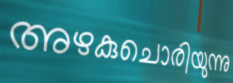
അഴകുചൊരിയുന്നു